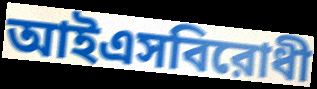
আইএসবিরোধী